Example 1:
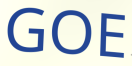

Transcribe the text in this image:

GOE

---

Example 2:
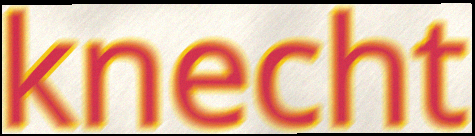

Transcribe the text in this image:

knecht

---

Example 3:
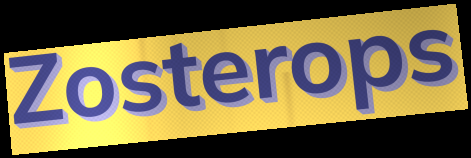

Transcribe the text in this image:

Zosterops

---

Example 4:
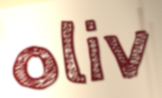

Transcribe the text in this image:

oliv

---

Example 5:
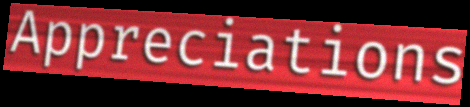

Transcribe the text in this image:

Appreciations